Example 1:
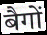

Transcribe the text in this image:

बैगों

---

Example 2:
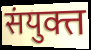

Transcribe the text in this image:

संयुक्त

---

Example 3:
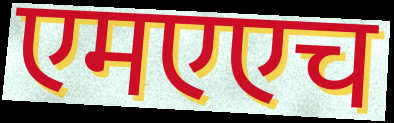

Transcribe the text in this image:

एमएएच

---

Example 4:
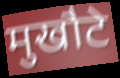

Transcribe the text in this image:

मुखौटे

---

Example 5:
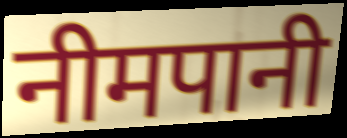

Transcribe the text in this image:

नीमपानी